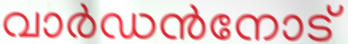
വാർഡൻനോട്